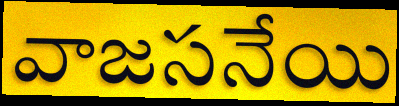
వాజసనేయి